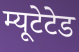
म्यूटेटेड